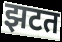
झटत